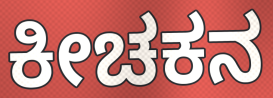
ಕೀಚಕನ